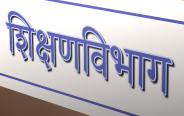
शिक्षणविभाग